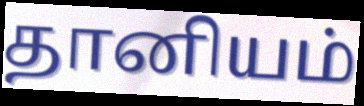
தானியம்